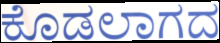
ಕೊಡಲಾಗದ